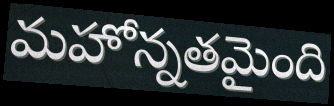
మహోన్నతమైంది